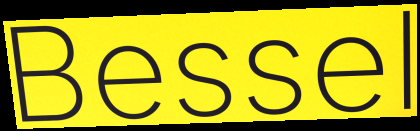
Bessel